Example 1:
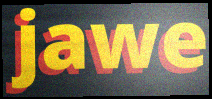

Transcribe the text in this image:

jawe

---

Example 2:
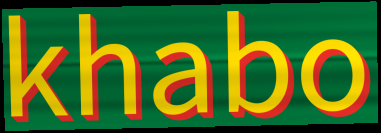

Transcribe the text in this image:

khabo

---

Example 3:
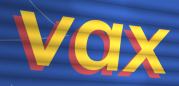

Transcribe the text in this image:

vax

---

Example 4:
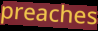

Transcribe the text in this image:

preaches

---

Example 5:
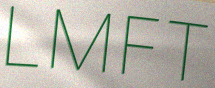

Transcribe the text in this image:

LMFT